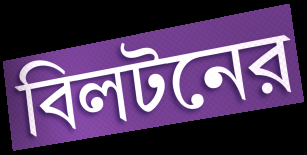
বিলটনের